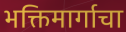
भक्तिमार्गाचा